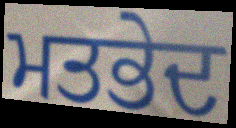
ਮਤਭੇਦ